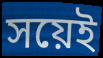
সয়েই